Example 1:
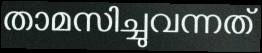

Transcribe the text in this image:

താമസിച്ചുവന്നത്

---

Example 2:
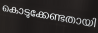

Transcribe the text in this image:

കൊടുക്കേണ്ടതായി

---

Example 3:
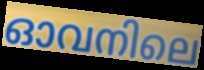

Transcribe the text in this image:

ഓവനിലെ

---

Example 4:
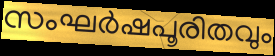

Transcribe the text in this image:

സംഘർഷപൂരിതവും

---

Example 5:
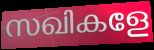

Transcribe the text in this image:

സഖികളേ